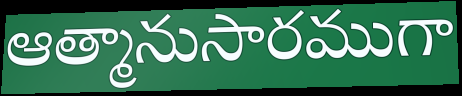
ఆత్మానుసారముగా